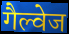
गैल्वेज